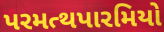
પરમત્થપારમિયો